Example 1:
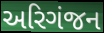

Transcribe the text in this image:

અરિગંજન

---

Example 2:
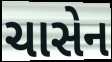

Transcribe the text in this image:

ચાસેન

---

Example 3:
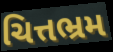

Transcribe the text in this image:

ચિત્તભ્રમ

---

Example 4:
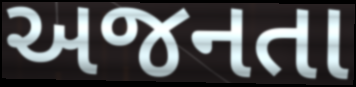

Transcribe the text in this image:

અજનતા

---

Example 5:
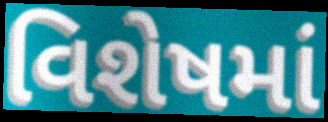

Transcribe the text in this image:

વિશેષમાં